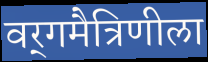
वर्गमैत्रिणीला